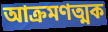
আক্রমণত্মক